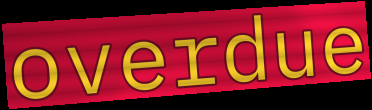
overdue